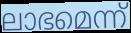
ലാഭമെന്ന്